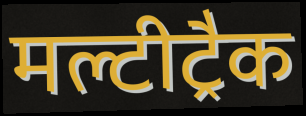
मल्टीट्रैक